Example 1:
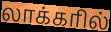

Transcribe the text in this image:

லாக்கரில்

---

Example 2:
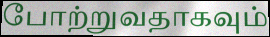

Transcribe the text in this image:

போற்றுவதாகவும்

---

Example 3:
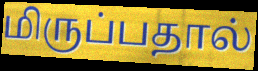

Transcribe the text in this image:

மிருப்பதால்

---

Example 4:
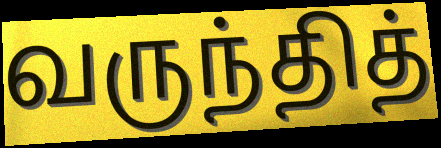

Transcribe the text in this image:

வருந்தித்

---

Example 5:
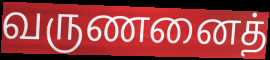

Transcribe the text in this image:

வருணனைத்